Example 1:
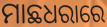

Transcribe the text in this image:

ମାଛଧରାରେ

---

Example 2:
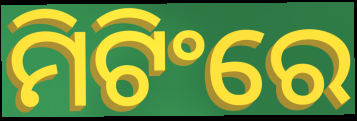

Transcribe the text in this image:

ମିଟିଂରେ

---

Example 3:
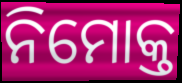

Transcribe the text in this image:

ନିମୋକ୍ତ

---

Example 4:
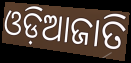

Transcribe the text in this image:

ଓଡ଼ିଆଜାତି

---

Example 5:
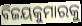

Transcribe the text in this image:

ବିଜୟକୁମାରକୁ